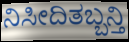
ನಿಸೀದಿತಬ್ಬನ್ತಿ